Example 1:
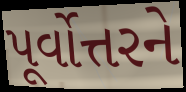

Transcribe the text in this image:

પૂર્વોત્તરને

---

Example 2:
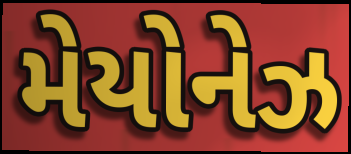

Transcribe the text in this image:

મેયોનેઝ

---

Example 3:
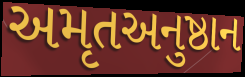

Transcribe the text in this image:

અમૃતઅનુષ્ઠાન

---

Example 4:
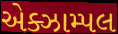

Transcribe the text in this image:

એક્ઝામ્પલ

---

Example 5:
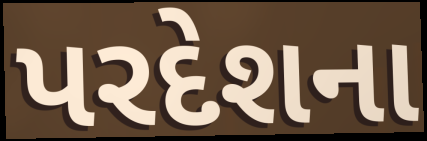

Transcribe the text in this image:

પરદેશના